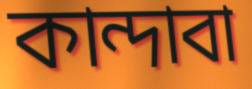
কান্দাবা